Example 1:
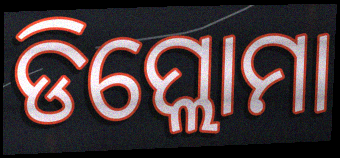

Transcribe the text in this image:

ଡିପ୍ଲୋମା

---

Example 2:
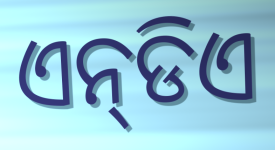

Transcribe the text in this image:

ଏନ୍‌ଡିଏ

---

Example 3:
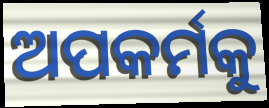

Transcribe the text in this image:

ଅପକର୍ମକୁ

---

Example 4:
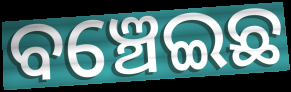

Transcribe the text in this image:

ବଞ୍ଚେଇଛ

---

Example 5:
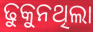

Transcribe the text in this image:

ଢୁକୁନଥିଲା